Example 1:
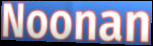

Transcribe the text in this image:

Noonan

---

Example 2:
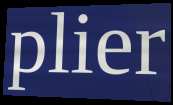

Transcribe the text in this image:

plier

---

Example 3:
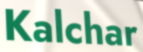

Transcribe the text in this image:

Kalchar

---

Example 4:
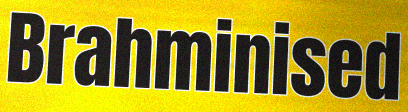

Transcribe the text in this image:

Brahminised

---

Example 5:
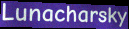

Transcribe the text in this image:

Lunacharsky